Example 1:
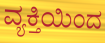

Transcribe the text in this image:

ವ್ಯಕ್ತಿಯಿಂದ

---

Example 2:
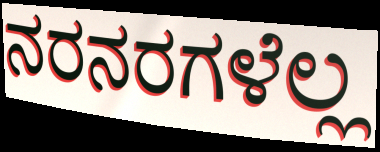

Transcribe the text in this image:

ನರನರಗಳೆಲ್ಲ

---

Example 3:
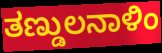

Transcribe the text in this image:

ತಣ್ಡುಲನಾಳಿಂ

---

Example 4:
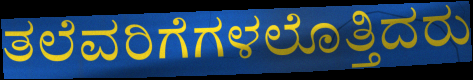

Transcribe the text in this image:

ತಲೆವರಿಗೆಗಳಲೊತ್ತಿದರು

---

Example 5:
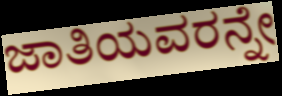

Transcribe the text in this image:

ಜಾತಿಯವರನ್ನೇ